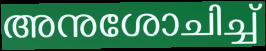
അനുശോചിച്ച്